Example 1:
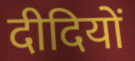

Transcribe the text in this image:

दीदियों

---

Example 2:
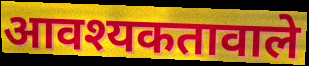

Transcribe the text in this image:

आवश्यकतावाले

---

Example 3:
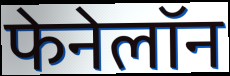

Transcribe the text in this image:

फेनेलॉन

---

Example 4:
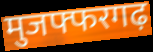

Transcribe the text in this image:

मुजफ्फरगढ़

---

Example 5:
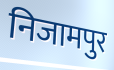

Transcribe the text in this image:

निजामपुर